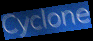
Cyclone